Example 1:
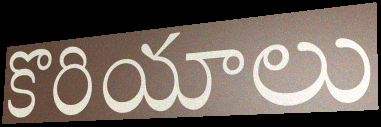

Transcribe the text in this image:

కొరియాలు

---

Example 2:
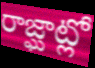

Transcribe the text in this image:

రాజ్ఘాట్లో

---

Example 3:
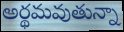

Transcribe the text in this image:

అర్థమవుతున్నా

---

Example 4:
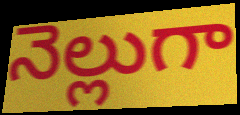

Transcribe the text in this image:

నెల్లుగా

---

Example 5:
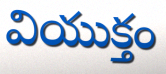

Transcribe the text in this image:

వియుక్తం